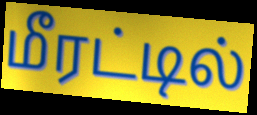
மீரட்டில்